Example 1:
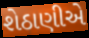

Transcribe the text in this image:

શેઠાણીએ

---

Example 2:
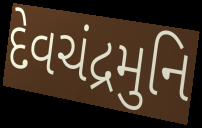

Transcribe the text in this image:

દેવચંદ્રમુનિ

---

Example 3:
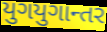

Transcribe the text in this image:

યુગયુગાન્તર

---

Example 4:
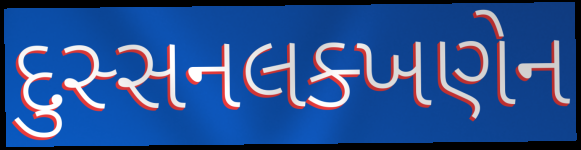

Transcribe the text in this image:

દુસ્સનલક્ખણેન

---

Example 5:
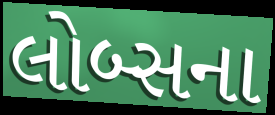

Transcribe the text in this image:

લોબ્સના